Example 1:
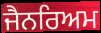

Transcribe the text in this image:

ਜੈਨਰਿਅਮ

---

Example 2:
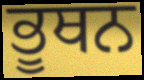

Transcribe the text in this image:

ਭੂਥਨ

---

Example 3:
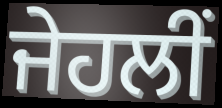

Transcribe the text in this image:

ਜੇਹਲੀਂ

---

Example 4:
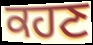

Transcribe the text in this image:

ਕਹਣ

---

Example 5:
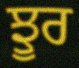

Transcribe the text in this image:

ਝੂਰ